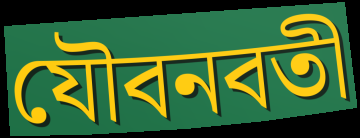
যৌবনবতী